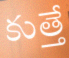
కుత్తే